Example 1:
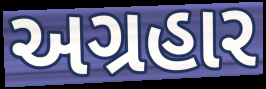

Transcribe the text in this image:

અગ્રહાર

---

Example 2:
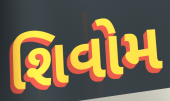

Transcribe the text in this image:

શિવોમ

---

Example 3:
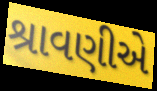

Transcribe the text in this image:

શ્રાવણીએ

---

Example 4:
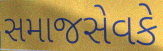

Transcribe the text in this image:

સમાજસેવકે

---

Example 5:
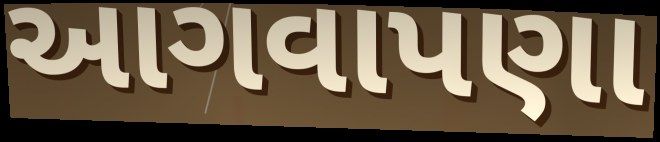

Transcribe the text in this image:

આગવાપણા